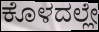
ಕೊಳದಲ್ಲೇ